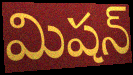
మిషన్